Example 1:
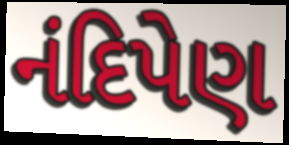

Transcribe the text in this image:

નંદિપેણ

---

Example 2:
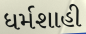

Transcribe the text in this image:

ધર્મશાહી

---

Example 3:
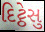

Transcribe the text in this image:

દિટ્ઠેસુ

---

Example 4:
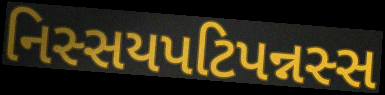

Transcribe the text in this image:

નિસ્સયપટિપન્નસ્સ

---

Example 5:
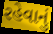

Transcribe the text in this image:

રહેવાનું